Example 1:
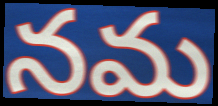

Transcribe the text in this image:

నమ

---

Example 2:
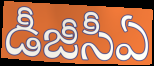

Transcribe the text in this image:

డీజీసీఏ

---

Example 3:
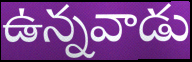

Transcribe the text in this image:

ఉన్నవాడు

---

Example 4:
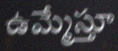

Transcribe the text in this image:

ఉమ్మేస్తూ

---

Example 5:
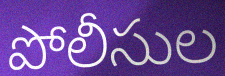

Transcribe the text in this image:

పోలీసుల